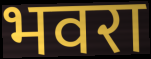
भवरा